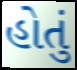
હોતું